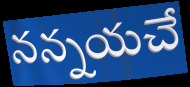
నన్నయచే